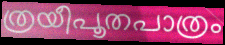
ത്രയീപൂതപാത്രം